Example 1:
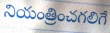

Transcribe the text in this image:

నియంత్రించగలిగే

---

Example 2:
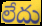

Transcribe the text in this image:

లేదు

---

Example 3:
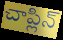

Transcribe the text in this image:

చాప్లిన్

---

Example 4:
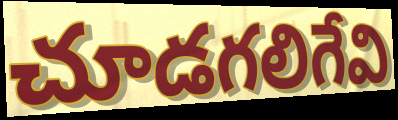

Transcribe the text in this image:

చూడగలిగేవి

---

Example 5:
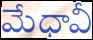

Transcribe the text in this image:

మేధావీ